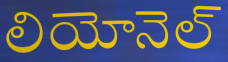
లియోనెల్